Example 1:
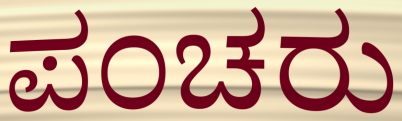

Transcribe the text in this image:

ಪಂಚರು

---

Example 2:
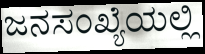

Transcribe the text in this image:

ಜನಸಂಖ್ಯೆಯಲ್ಲಿ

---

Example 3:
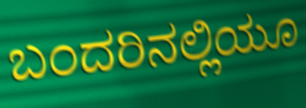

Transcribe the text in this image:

ಬಂದರಿನಲ್ಲಿಯೂ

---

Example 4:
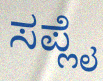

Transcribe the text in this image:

ಸಪ್ಲೈ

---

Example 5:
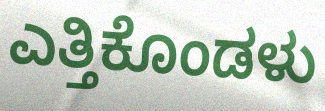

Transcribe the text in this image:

ಎತ್ತಿಕೊಂಡಳು